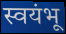
स्वयंभू